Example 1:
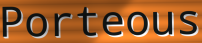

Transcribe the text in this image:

Porteous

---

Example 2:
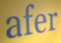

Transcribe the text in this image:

afer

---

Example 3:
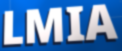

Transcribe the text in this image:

LMIA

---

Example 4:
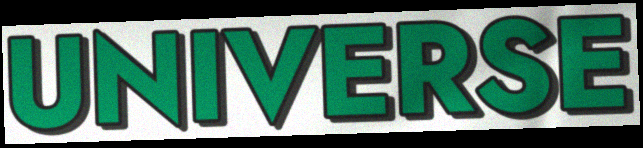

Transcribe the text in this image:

UNIVERSE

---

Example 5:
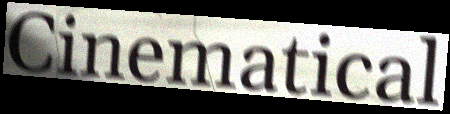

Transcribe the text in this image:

Cinematical